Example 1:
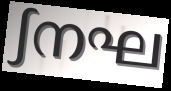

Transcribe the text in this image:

ഽനഘ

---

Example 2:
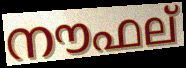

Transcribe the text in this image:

നൗഫല്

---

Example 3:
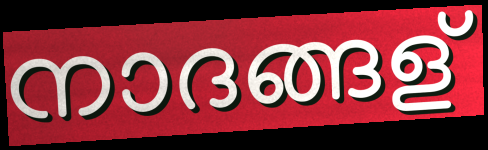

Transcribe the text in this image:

നാദങ്ങള്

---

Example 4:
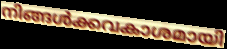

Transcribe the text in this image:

നിങ്ങൾക്കവകാശമായി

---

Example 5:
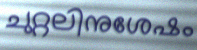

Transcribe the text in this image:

ചുറ്റലിനുശേഷം